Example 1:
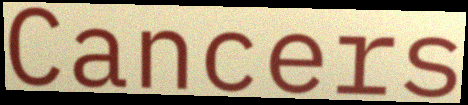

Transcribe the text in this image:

Cancers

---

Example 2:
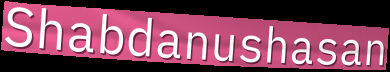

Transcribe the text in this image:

Shabdanushasan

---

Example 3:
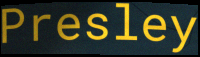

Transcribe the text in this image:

Presley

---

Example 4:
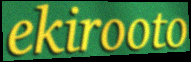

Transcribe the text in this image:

ekirooto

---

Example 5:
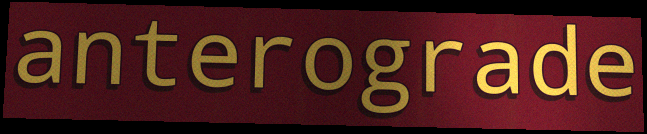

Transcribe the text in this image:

anterograde